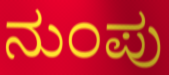
ನುಂಪು